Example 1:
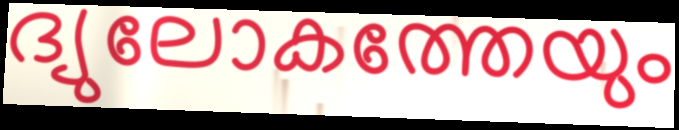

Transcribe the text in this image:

ദ്യുലോകത്തേയും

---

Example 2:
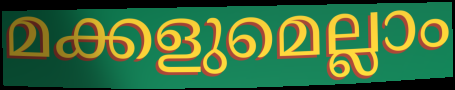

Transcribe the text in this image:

മക്കളുമെല്ലാം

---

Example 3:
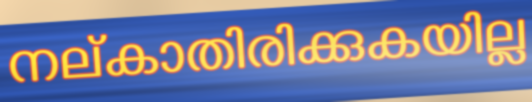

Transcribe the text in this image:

നല്‌കാതിരിക്കുകയില്ല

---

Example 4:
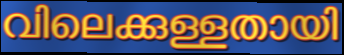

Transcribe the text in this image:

വിലെക്കുള്ളതായി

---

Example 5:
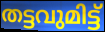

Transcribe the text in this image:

തട്ടവുമിട്ട്